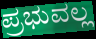
ಪ್ರಭುವಲ್ಲ